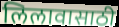
लिलावासाठी